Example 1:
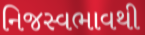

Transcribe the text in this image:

નિજસ્વભાવથી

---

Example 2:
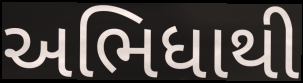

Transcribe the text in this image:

અભિધાથી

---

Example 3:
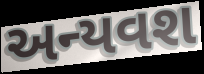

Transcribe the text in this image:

અન્યવશ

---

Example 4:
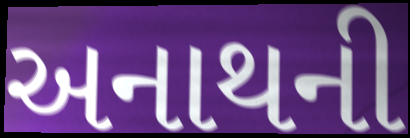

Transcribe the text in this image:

અનાથની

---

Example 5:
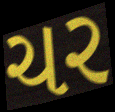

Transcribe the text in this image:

ચર